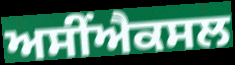
ਅਸੀਂਐਕਸਲ